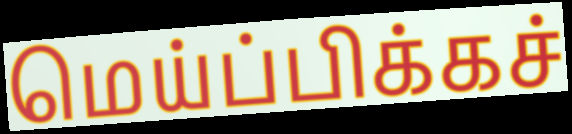
மெய்ப்பிக்கச்